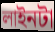
লাইনটা